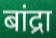
बांद्रा